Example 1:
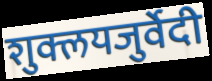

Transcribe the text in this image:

शुक्लयजुर्वेदी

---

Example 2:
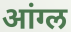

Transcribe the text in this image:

आंग्ल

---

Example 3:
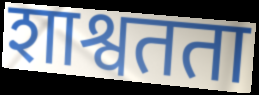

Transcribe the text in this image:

शाश्वतता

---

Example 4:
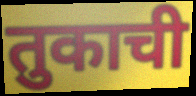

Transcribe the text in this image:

तुकाची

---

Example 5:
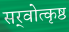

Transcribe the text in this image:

सर्वोत्कृष्ठ